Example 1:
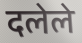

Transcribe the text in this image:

दलेले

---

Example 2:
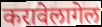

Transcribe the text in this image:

करावेलागेल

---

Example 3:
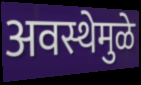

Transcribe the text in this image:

अवस्थेमुळे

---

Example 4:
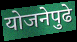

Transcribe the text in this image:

योजनेपुढे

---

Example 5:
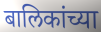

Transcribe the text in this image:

बालिकांच्या